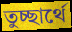
তুচ্ছার্থে